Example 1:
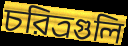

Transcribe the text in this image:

চরিত্রগুলি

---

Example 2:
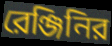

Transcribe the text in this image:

রেঞ্জিনির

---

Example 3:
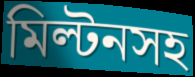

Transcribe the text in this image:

মিল্টনসহ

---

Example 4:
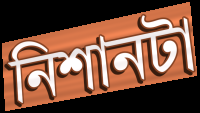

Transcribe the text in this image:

নিশানটা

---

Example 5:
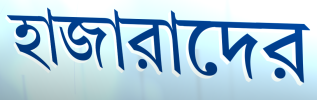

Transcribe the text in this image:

হাজারাদের